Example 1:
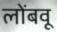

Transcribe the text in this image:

लोंबवू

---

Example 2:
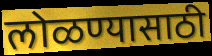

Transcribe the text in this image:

लोळण्यासाठी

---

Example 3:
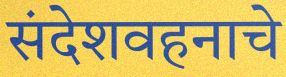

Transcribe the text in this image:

संदेशवहनाचे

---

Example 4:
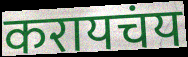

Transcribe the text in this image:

करायचंय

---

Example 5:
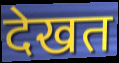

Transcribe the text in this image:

देखत